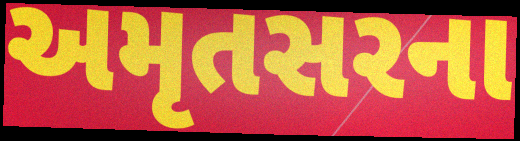
અમૃતસરના